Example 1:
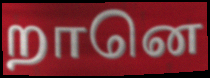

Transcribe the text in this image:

றானெ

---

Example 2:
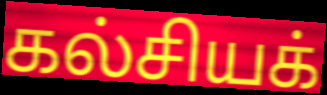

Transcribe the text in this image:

கல்சியக்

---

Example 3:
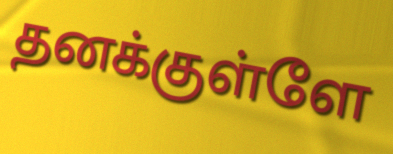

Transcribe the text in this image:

தனக்குள்ளே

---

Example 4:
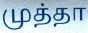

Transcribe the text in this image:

முத்தா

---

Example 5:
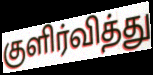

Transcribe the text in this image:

குளிர்வித்து